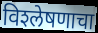
विश्‍लेषणाचा